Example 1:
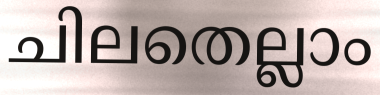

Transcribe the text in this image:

ചിലതെല്ലാം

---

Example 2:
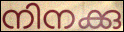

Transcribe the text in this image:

നിനക്കു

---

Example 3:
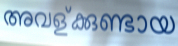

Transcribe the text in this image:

അവള്ക്കുണ്ടായ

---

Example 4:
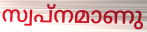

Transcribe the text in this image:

സ്വപ്നമാണു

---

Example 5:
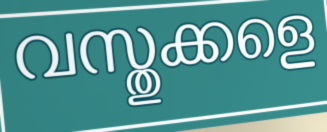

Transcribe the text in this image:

വസ്തുക്കളെ